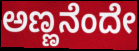
ಅಣ್ಣನೆಂದೇ